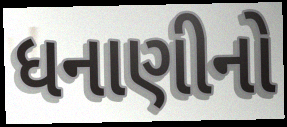
ધનાણીનો